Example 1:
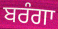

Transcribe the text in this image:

ਬਰੰਗਾ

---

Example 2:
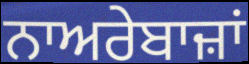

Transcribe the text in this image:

ਨਾਅਰੇਬਾਜ਼ਾਂ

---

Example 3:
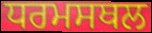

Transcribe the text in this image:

ਧਰਮਸਥਲ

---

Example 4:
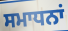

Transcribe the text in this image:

ਸਮਾਧਨਾਂ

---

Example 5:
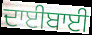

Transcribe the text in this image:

ਦਾਈਬਾਈ